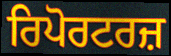
ਰਿਪੋਰਟਰਜ਼